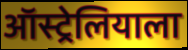
ऑस्ट्रेलियाला